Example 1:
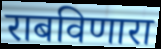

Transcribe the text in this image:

राबविणारा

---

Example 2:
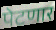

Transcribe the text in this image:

पेटणार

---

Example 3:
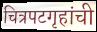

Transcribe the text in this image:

चित्रपटगृहांची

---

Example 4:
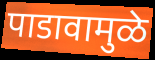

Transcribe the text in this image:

पाडावामुळे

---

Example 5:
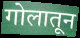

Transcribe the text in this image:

गोलातून